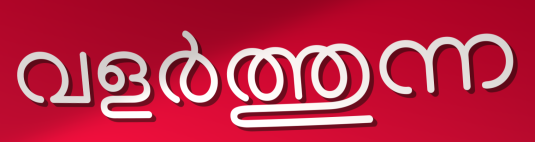
വളർത്തുന്ന